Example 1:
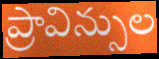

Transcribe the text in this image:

ప్రావిన్సుల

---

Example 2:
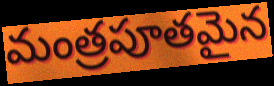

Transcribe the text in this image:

మంత్రపూతమైన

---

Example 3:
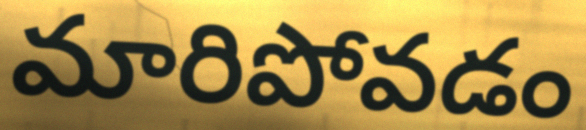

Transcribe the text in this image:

మారిపోవడం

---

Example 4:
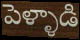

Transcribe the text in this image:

పెళ్ళాడి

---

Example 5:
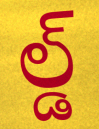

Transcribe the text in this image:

ల్డ్